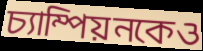
চ্যাম্পিয়নকেও